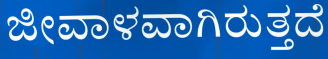
ಜೀವಾಳವಾಗಿರುತ್ತದೆ